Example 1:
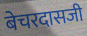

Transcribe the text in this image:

बेचरदासजी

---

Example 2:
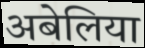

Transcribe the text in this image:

अबेलिया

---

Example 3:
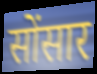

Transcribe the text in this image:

सोंसार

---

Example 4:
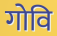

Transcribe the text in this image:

गोवि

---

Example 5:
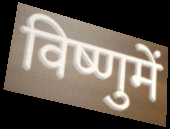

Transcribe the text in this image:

विष्णुमें